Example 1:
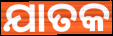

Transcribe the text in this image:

ଯାତକ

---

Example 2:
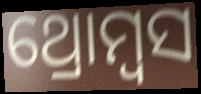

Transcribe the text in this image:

ଥ୍ରୋମ୍ବସ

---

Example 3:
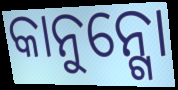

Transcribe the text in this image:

କାନୁନ୍ଗୋ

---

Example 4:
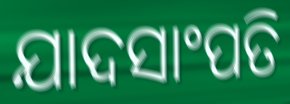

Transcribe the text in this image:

ଯାଦସାଂପତି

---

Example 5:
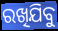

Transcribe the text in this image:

ରଖିଯିବୁ